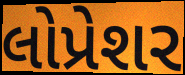
લોપ્રેશર